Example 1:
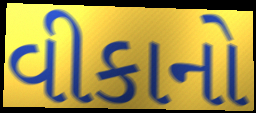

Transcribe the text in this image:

વીકાનો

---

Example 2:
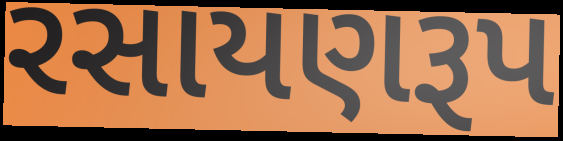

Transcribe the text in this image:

રસાયણરૂપ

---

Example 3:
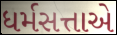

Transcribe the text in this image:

ધર્મસત્તાએ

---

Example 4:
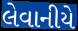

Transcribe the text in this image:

લેવાનીયે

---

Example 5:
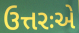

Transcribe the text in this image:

ઉત્તરઃએ